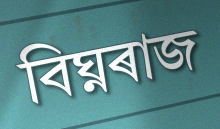
বিঘ্নৰাজ